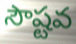
సౌష్టవ